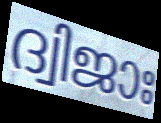
ദ്വിജാഃ